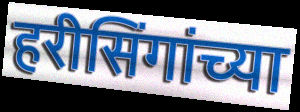
हरीसिंगांच्या